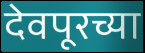
देवपूरच्या